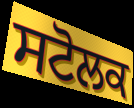
ਸਟੋਲਕ